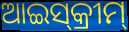
ଆଇସ୍‌କ୍ରୀମ୍